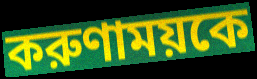
করুণাময়কে